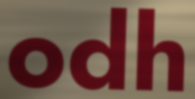
odh